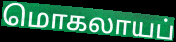
மொகலாயப்